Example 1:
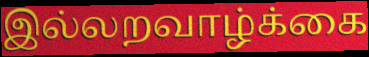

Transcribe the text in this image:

இல்லறவாழ்க்கை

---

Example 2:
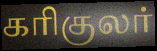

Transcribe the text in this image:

கரிகுலர்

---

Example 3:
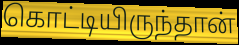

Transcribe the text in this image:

கொட்டியிருந்தான்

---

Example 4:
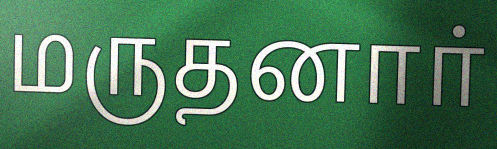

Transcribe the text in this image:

மருதனார்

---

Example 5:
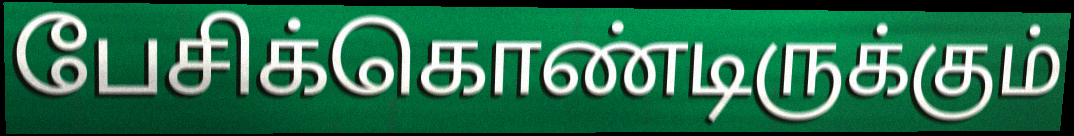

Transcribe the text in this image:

பேசிக்கொண்டிருக்கும்